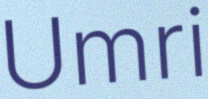
Umri